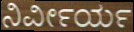
ನಿರ್ವೀರ್ಯ